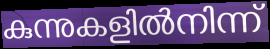
കുന്നുകളിൽനിന്ന്